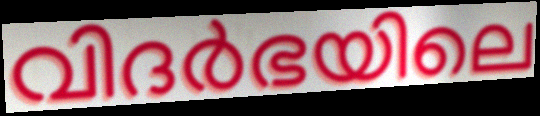
വിദർഭയിലെ